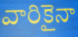
వారికైనా